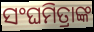
ସଂଘମିତ୍ରାଙ୍କ